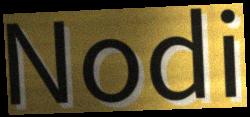
Nodi